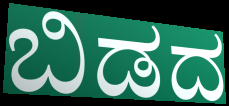
ಬಿಡದ